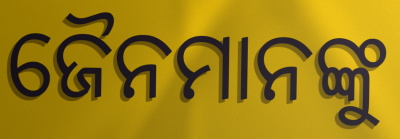
ଜୈନମାନଙ୍କୁ